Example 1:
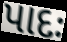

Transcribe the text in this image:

પાદઃ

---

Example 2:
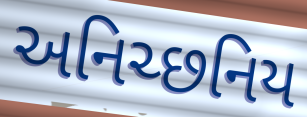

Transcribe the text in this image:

અનિચ્છનિય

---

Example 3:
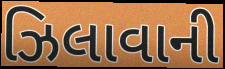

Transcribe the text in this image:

ઝિલાવાની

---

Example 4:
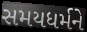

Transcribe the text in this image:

સમયધર્મને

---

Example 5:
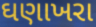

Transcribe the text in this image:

ઘણાખરા